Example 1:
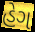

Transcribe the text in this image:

હેગ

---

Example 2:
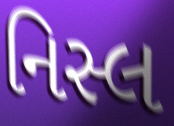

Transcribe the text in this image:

નિસ્લ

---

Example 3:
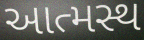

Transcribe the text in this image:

આત્મસ્થ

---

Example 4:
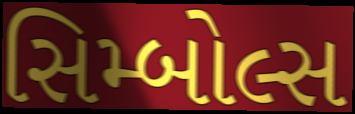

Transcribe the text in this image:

સિમ્બોલ્સ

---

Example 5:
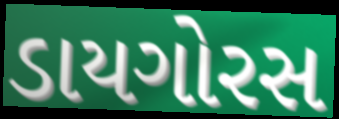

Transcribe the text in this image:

ડાયગોરસ